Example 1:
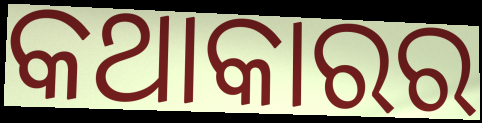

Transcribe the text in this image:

କଥାକାରର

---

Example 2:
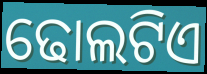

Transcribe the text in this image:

ଢୋଲଟିଏ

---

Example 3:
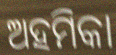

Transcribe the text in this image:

ଅହମିକା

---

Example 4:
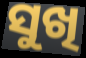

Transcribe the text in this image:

ସୁଖି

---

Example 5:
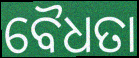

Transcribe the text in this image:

ବୈଧତା